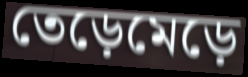
তেড়েমেড়ে